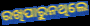
ରଖିପାରୁନଥିଲେ